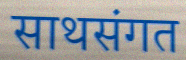
साथसंगत